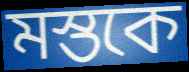
মস্তকে